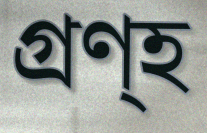
গ্ৰণ্হ